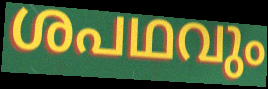
ശപഥവും